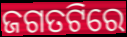
ଜଗତଟିରେ